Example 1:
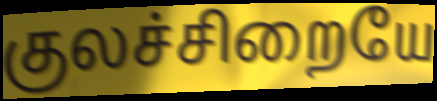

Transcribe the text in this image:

குலச்சிறையே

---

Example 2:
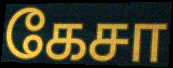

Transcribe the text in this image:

கேசா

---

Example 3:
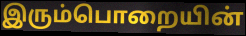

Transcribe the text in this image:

இரும்பொறையின்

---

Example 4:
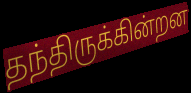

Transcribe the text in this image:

தந்திருக்கின்றன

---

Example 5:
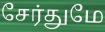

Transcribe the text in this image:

சேர்துமே